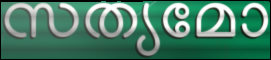
സത്യമോ